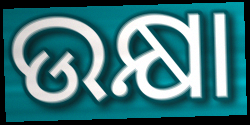
ଉକ୍ଷା